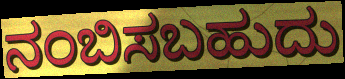
ನಂಬಿಸಬಹುದು